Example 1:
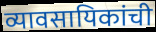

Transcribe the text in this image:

व्यावसायिकांची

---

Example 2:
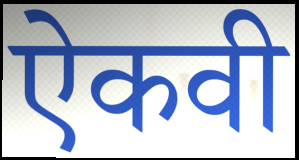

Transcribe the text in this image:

ऐकवी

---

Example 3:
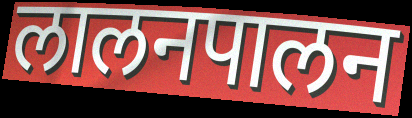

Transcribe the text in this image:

लालनपालन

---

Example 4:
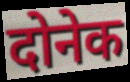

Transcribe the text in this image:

दोनेक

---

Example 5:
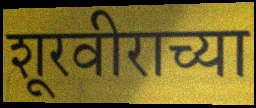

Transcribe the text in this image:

शूरवीराच्या